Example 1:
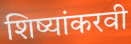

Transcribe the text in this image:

शिष्यांकरवी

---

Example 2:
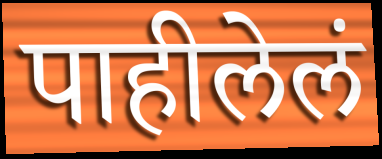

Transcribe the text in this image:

पाहीलेलं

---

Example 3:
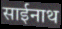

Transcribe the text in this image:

साईनाथ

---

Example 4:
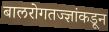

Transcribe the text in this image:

बालरोगतज्ज्ञांकडून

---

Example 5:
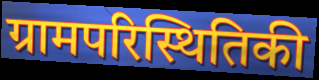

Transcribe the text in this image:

ग्रामपरिस्थितिकी